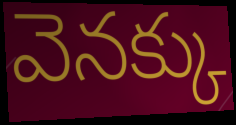
వెనక్కు